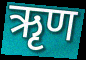
ऋृण